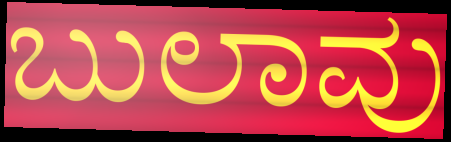
ಬುಲಾವು